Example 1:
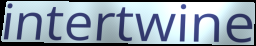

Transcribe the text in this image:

intertwine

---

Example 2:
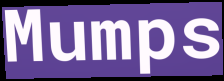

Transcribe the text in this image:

Mumps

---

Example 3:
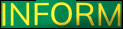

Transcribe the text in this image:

INFORM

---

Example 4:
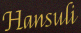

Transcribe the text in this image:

Hansuli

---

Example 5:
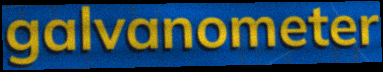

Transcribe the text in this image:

galvanometer